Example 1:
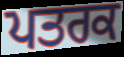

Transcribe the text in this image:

ਪਤਰਕ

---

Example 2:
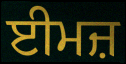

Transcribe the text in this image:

ਈਮਜ਼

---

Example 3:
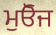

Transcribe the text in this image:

ਮੁਓੋਜ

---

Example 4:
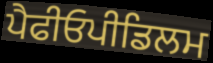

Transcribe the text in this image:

ਪੈਫੀਓਪੀਡਿਲਮ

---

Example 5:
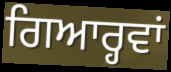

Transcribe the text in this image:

ਗਿਆਰ੍ਹਵਾਂ